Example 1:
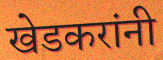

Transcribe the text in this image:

खेडकरांनी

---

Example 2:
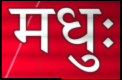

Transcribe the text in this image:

मधुः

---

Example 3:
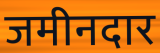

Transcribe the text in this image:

जमीनदार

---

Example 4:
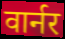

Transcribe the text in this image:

वार्नर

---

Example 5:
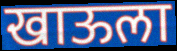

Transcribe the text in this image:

खाऊला